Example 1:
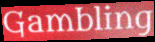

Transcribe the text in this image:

Gambling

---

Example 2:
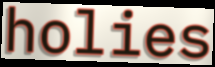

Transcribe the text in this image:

holies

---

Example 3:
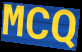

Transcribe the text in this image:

MCQ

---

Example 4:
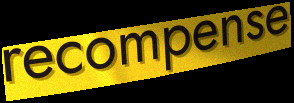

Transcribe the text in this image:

recompense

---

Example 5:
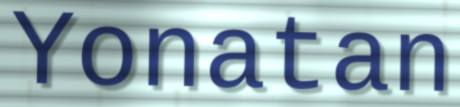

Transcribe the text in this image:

Yonatan